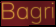
Bagri